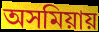
অসমিয়ায়